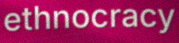
ethnocracy